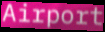
Airport